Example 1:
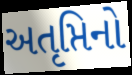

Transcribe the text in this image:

અતૃપ્તિનો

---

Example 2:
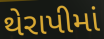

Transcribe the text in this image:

થેરાપીમાં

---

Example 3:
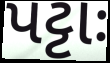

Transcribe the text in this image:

પટ્ટાઃ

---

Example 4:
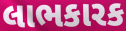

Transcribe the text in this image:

લાભકારક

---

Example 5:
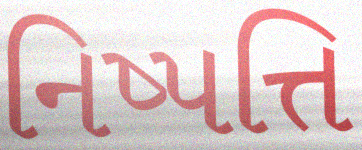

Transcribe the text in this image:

નિષ્પત્તિ